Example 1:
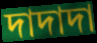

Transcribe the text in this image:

দাদাদা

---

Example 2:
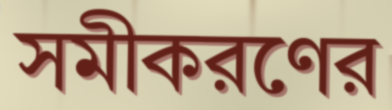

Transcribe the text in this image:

সমীকরণের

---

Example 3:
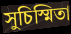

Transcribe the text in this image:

সুচিস্মিতা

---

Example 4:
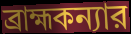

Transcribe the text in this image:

ব্রাহ্মকন্যার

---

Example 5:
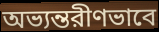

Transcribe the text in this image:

অভ্যন্তরীণভাবে